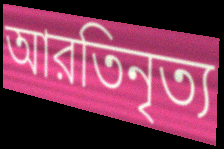
আরতিনৃত্য